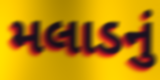
મલાડનું